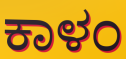
ಕಾಳಂ